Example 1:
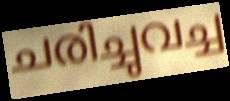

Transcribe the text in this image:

ചരിച്ചുവച്ച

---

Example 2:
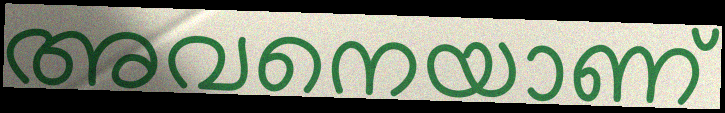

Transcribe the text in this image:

അവനെയാണ്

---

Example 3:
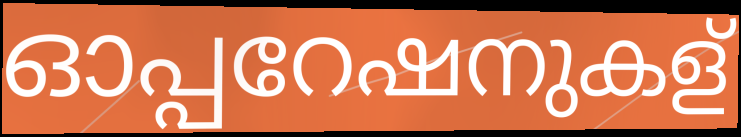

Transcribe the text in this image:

ഓപ്പറേഷനുകള്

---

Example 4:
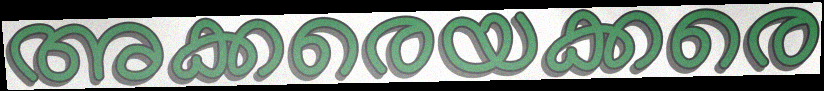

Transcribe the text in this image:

അക്കരെയക്കരെ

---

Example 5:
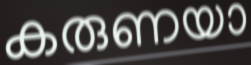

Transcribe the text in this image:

കരുണയാ